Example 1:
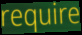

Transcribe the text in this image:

require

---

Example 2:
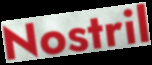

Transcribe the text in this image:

Nostril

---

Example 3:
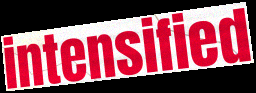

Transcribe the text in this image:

intensified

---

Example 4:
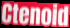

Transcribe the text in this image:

Ctenoid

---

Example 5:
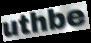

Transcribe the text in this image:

uthbe